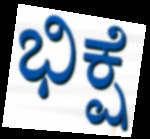
ಭಿಕ್ಷೆ